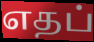
எதப்